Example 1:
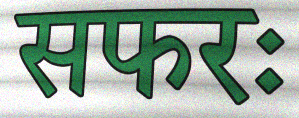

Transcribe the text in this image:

सफरः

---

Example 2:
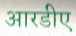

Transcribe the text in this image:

आरडीए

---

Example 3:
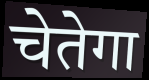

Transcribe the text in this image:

चेतेगा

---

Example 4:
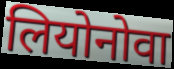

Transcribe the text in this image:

लियोनोवा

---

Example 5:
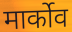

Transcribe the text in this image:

मार्कोव